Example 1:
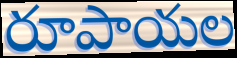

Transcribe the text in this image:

రూపాయల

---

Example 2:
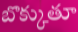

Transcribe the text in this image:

బొక్కుతూ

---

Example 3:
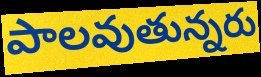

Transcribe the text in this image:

పాలవుతున్నరు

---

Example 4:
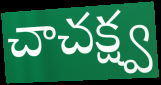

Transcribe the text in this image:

చాచక్ష్వ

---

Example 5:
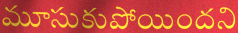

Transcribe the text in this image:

మూసుకుపోయిందని